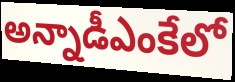
అన్నాడీఎంకేలో